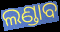
ଲଣ୍ଡାବ